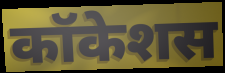
कॉकेशस